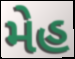
મેહ